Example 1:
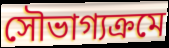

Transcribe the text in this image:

সৌভাগ্যক্ৰমে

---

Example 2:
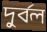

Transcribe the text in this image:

দুৰ্বল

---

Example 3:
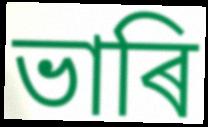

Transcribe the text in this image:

ভাৰি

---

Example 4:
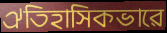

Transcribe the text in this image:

ঐতিহাসিকভাৱে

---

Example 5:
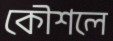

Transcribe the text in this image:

কৌশলে